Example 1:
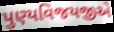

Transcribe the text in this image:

પુણ્યવિજયજીએ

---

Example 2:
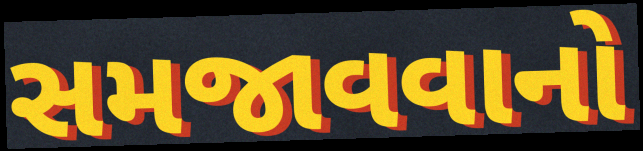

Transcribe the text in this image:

સમજાવવાનો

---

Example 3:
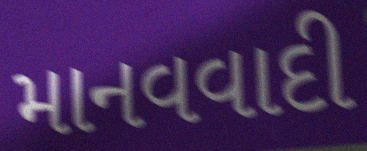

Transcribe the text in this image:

માનવવાદી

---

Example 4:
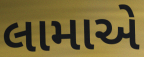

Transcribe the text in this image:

લામાએ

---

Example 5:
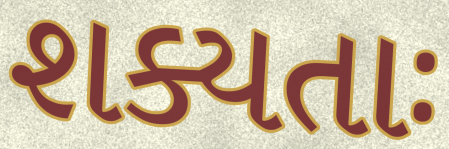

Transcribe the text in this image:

શક્યતાઃ